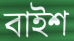
বাইশ